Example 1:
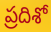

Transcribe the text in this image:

ప్రదిశో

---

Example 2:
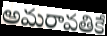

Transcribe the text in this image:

అమరావతికే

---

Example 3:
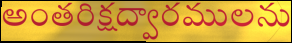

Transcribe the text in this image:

అంతరిక్షద్వారములను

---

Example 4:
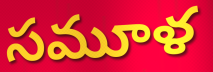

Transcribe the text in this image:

సమూళ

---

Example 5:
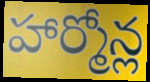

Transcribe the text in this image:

హార్మోన్ల